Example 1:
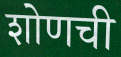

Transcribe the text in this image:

शोणची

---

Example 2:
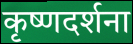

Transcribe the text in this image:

कृष्णदर्शना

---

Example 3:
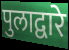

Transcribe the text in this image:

पुलाद्वारे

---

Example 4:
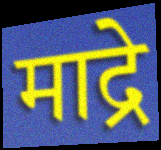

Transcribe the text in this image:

माद्रे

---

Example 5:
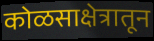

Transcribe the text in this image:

कोळसाक्षेत्रातून